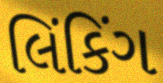
લિંકિંગ